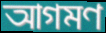
আগমণ